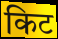
किट